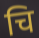
चि